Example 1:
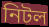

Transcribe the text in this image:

নিটল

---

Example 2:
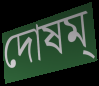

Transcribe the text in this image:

দোষম্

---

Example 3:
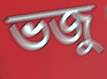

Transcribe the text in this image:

ভজু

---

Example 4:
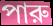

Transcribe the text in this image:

পারু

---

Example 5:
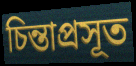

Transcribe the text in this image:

চিন্তাপ্রসূত